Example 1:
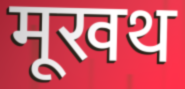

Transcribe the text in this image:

मूखथ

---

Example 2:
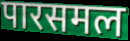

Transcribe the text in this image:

पारसमल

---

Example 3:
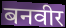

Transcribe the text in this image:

बनवीर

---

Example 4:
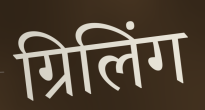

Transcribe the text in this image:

ग्रिलिंग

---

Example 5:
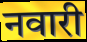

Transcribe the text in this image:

नवारी